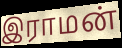
இராமன்